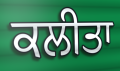
ਕਲੀਤਾ